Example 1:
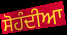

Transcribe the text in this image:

ਸੋਹੰਦੀਆ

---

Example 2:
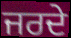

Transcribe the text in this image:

ਜਰਦੇ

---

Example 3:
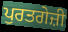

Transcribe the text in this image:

ਪੁਰਤਗੇਜ਼ੀ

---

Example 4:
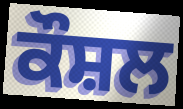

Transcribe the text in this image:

ਕੌਸ਼ਲ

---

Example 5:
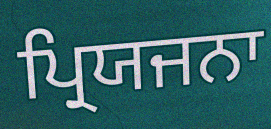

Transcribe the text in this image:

ਪ੍ਰਿਯਜਨਾ